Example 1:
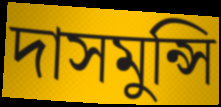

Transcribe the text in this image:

দাসমুন্সি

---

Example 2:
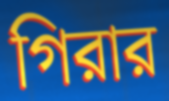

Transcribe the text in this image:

গিরার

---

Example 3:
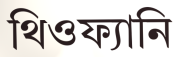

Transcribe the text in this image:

থিওফ্যানি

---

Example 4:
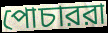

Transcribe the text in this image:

পোচাররা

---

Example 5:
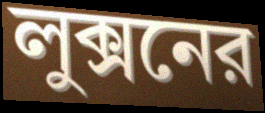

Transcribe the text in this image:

লুক্সনের